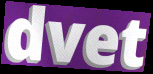
dvet